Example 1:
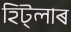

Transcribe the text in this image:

হিট্‌লাৰ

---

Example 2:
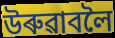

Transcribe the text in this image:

উৰুৱাবলৈ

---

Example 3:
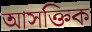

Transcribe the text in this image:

আসক্তিক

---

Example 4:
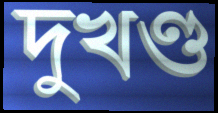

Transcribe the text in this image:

দুখণ্ড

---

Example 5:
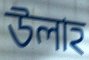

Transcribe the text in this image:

উলাহ